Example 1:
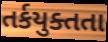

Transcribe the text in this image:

તર્કયુક્તતા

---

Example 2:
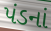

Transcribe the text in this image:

પંડનાં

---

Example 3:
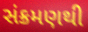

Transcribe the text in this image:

સંક્રમણથી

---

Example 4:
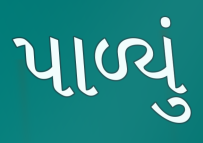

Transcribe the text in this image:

પાળ્યું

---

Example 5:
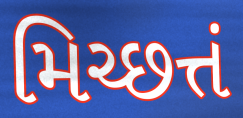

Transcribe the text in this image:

મિચ્છત્તં